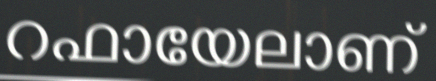
റഫായേലാണ്